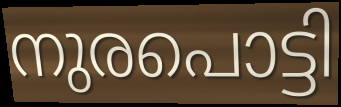
നുരപൊട്ടി